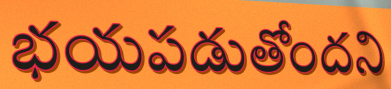
భయపడుతోందని